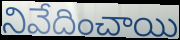
నివేదించాయి